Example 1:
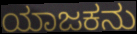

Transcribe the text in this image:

ಯಾಜಕನು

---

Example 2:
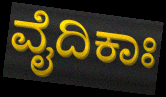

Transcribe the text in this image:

ವೈದಿಕಾಃ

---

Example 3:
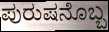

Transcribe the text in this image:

ಪುರುಷನೊಬ್ಬ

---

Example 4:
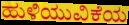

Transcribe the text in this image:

ಹುಳಿಯುವಿಕೆಯ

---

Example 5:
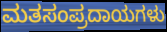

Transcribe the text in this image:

ಮತಸಂಪ್ರದಾಯಗಳು